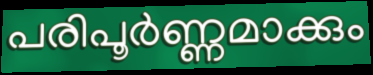
പരിപൂർണ്ണമാക്കും